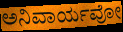
ಅನಿವಾರ್ಯವೋ